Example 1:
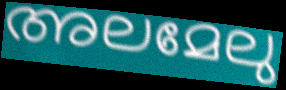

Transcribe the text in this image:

അലമേലു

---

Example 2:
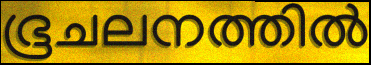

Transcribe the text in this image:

ഭൂചലനത്തിൽ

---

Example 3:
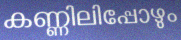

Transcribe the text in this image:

കണ്ണിലിപ്പോഴും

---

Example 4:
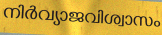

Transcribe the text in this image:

നിർവ്യാജവിശ്വാസം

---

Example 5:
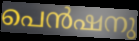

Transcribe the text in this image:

പെൻഷനു